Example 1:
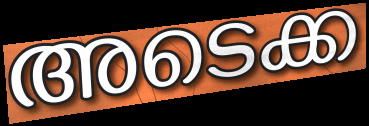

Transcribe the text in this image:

അടെക്ക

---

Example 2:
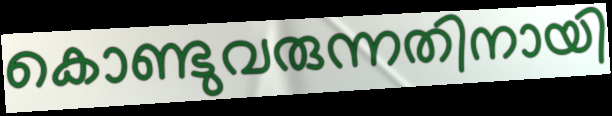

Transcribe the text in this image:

കൊണ്ടുവരുന്നതിനായി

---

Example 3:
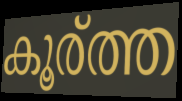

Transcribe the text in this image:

കൂര്ത്ത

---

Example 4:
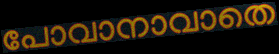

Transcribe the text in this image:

പോവാനാവാതെ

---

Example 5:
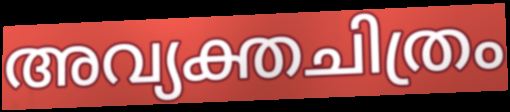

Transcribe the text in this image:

അവ്യക്തചിത്രം